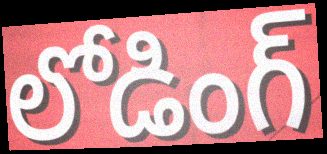
లోడింగ్